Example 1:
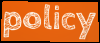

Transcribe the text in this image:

policy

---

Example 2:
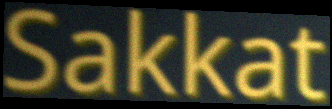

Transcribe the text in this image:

Sakkat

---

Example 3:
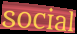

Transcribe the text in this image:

social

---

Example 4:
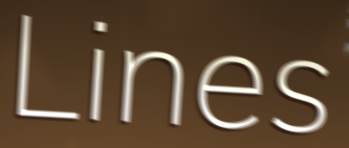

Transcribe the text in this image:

Lines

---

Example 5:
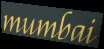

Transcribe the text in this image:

mumbai